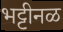
भट्टीनळ